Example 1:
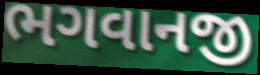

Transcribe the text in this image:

ભગવાનજી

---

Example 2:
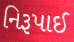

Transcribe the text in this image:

નિરૂપાઈ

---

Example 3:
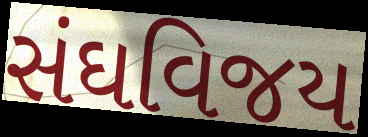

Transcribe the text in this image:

સંઘવિજય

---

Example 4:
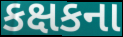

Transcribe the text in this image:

કક્ષકના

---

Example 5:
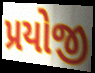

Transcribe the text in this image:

પ્રયોજી